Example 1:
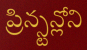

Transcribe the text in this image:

ప్రిన్స్టన్లోని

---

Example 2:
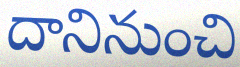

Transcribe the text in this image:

దానినుంచి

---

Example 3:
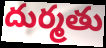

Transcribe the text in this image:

దుర్మతు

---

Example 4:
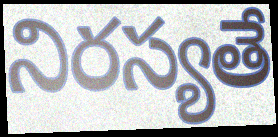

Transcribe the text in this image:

నిరస్యతే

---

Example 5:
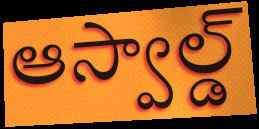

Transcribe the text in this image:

ఆస్వాల్డ్